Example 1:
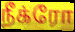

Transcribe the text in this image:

நீக்ரோ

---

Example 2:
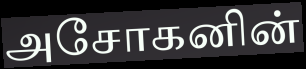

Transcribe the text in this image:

அசோகனின்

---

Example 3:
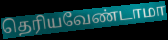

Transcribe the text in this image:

தெரியவேண்டாமா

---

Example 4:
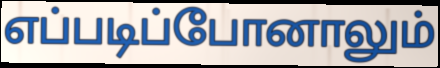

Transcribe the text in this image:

எப்படிப்போனாலும்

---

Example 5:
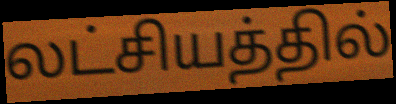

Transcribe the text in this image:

லட்சியத்தில்